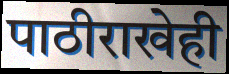
पाठीराखेही